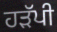
ਹੜੱਪੀ